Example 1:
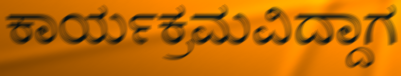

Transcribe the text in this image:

ಕಾರ್ಯಕ್ರಮವಿದ್ದಾಗ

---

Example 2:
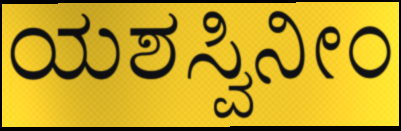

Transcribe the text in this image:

ಯಶಸ್ವಿನೀಂ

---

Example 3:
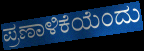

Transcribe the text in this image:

ಪ್ರಣಾಳಿಕೆಯೆಂದು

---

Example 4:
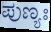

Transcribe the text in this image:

ಪುಣ್ಯಃ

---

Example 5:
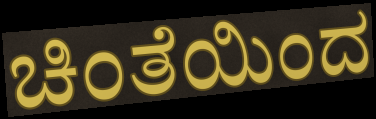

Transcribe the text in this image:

ಚಿಂತೆಯಿಂದ